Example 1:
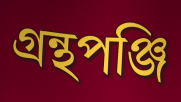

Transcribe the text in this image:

গ্রন্থপঞ্জি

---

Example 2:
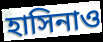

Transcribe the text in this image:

হাসিনাও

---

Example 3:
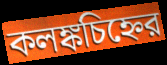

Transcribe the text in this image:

কলঙ্কচিহ্নের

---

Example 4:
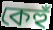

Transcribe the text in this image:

কেহুঁ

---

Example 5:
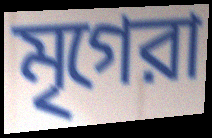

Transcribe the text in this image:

মৃগেরা